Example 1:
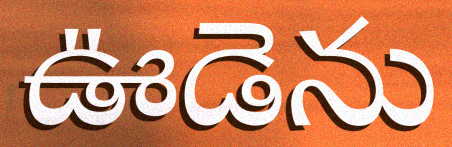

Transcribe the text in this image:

ఊడెను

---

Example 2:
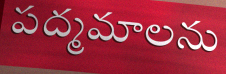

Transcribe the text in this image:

పద్మమాలను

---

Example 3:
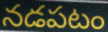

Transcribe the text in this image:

నడపటం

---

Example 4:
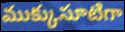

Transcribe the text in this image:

ముక్కుసూటిగా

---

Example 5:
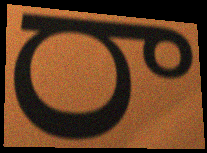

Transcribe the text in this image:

రా